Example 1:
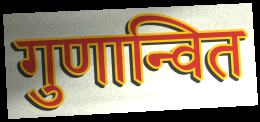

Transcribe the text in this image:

गुणान्वित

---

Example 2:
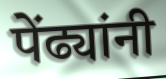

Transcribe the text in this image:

पेंढ्यांनी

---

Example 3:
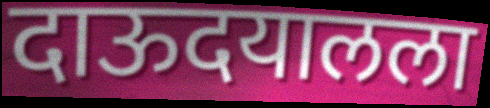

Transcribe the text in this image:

दाऊदयालला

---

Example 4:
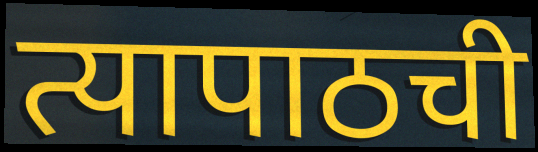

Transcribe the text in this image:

त्यापाठची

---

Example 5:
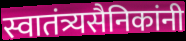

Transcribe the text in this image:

स्वातंत्र्यसैनिकांनी